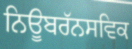
ਨਿਊਬਰੱਨਸਵਿਕ